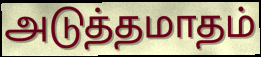
அடுத்தமாதம்